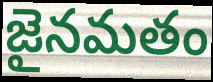
జైనమతం